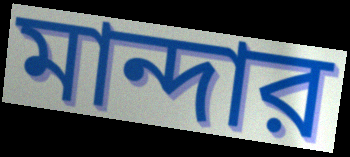
মান্দার